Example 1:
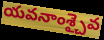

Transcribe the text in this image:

యవనాంశ్చైవ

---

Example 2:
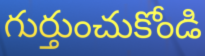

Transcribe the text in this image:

గుర్తుంచుకోండి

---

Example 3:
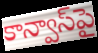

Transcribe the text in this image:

కాన్వాస్‌పై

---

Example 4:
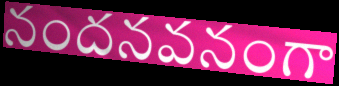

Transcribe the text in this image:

నందనవనంగా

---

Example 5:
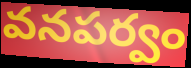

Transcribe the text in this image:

వనపర్వం